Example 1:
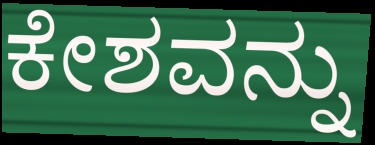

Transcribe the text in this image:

ಕೇಶವನ್ನು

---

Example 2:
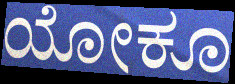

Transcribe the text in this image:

ಯೋಕೂ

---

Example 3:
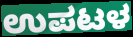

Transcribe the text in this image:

ಉಪಟಳ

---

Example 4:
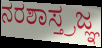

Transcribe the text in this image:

ನರಶಾಸ್ತ್ರಜ್ಞ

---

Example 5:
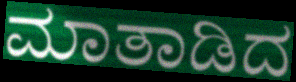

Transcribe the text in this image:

ಮಾತಾಡಿದ